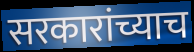
सरकारांच्याच